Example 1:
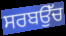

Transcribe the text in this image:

ਸਰਬਉੱਚ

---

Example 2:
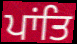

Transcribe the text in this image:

ਪਾਂਤਿ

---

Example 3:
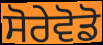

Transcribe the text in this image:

ਸੋਰੇਵੋਡੋ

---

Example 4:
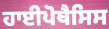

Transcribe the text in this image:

ਹਾਈਪੋਥੈਸਿਸ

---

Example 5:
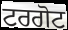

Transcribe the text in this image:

ਟਰਗੋਟ